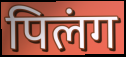
पिलंग